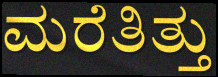
ಮರೆತಿತ್ತು